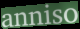
anniso